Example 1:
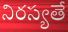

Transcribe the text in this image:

నిరస్యతే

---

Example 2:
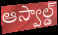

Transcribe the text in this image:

ఆస్వాల్డ్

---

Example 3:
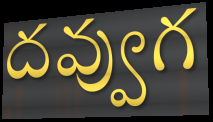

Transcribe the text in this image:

దవ్వుగ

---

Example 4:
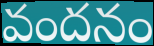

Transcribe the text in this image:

వందనం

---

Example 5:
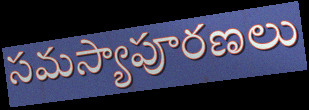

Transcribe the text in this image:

సమస్యాపూరణలు